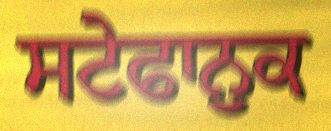
ਸਟੇਫਾਨੁਕ